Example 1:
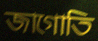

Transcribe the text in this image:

জাগোতি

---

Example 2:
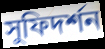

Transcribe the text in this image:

সুফিদর্শন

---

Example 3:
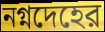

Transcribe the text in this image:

নগ্নদেহের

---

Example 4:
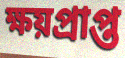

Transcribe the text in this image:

ক্ষয়প্রাপ্ত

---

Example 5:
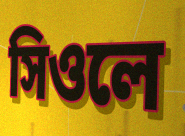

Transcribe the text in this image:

সিওলে